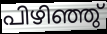
പിഴിഞ്ഞു്